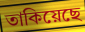
তাকিয়েছে